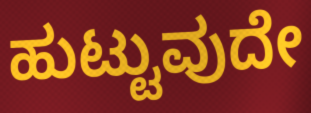
ಹುಟ್ಟುವುದೇ